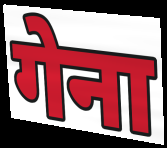
गेना